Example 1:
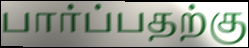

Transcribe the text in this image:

பார்ப்பதற்கு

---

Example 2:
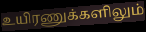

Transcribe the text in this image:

உயிரணுக்களிலும்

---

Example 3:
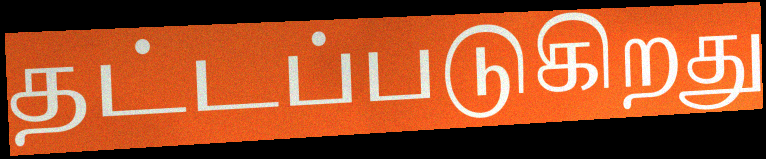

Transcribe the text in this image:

தட்டப்படுகிறது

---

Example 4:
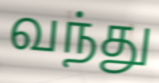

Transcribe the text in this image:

வந்து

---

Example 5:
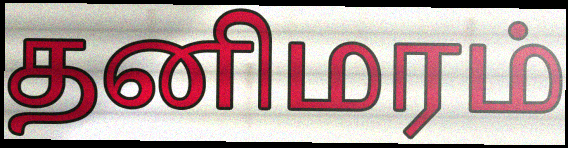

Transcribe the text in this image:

தனிமரம்